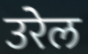
उरेल